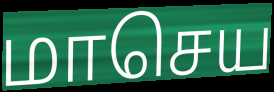
மாசெய